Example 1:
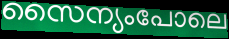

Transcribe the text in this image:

സൈന്യംപോലെ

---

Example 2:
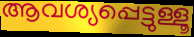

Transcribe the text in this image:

ആവശ്യപ്പെട്ടുള്ളൂ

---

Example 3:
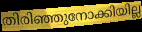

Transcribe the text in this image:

തിരിഞ്ഞുനോക്കിയില്ല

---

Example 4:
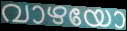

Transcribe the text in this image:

വാഴയോ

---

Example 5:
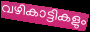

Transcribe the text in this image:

വഴികാട്ടികളും